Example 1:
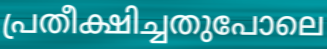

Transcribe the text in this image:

പ്രതീക്ഷിച്ചതുപോലെ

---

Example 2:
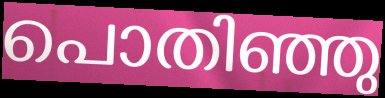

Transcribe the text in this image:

പൊതിഞ്ഞു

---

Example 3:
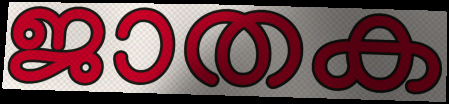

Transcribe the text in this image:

ജാതക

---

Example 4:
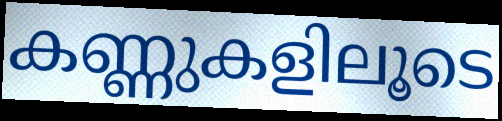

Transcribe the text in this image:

കണ്ണുകളിലൂടെ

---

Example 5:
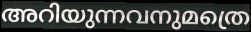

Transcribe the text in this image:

അറിയുന്നവനുമത്രെ